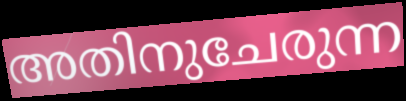
അതിനുചേരുന്ന